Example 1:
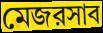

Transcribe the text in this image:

মেজরসাব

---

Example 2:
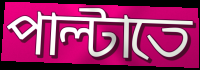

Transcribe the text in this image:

পাল্টাতে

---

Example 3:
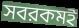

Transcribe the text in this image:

সবরকমই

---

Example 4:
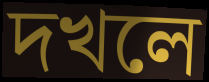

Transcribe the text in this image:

দখলে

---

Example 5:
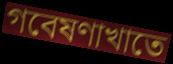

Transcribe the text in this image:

গবেষণাখাতে